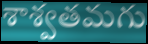
శాశ్వతమగు